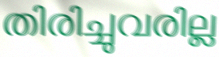
തിരിച്ചുവരില്ല